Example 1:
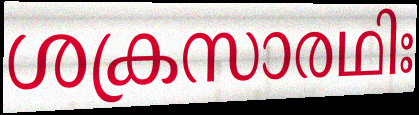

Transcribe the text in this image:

ശക്രസാരഥിഃ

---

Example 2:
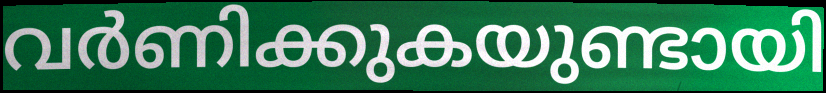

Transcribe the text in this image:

വർണിക്കുകയുണ്ടായി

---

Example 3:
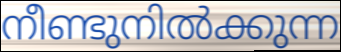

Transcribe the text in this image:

നീണ്ടുനിൽക്കുന്ന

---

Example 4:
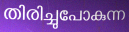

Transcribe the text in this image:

തിരിച്ചുപോകുന്ന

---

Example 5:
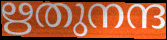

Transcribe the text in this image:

ഋതുനന്ദ